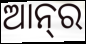
ଆନ୍‌ର